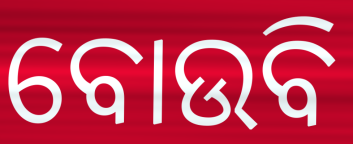
ବୋଉବି